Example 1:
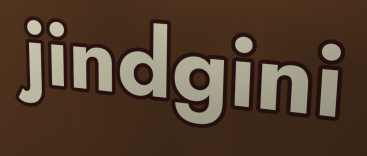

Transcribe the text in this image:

jindgini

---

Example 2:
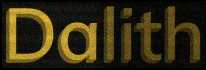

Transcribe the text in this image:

Dalith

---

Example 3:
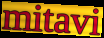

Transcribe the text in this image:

mitavi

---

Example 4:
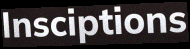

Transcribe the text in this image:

Insciptions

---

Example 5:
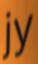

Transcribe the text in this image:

jy